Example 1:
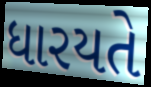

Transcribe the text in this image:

ધારયતે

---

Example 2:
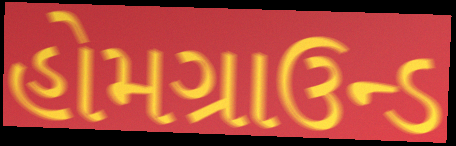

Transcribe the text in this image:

હોમગ્રાઉન્ડ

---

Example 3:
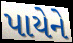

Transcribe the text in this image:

પાયેને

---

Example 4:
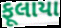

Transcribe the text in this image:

ફૂલાયા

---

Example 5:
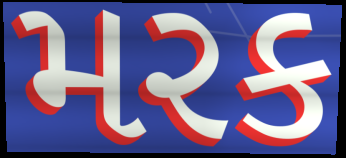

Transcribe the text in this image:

મરક